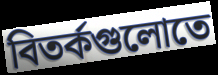
বিতর্কগুলোতে